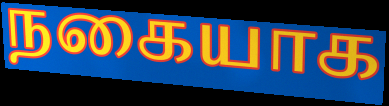
நகையாக